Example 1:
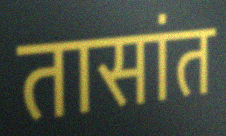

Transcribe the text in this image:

तासांत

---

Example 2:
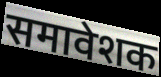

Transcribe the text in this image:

समावेशक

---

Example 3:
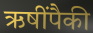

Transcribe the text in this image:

ऋषींपैकी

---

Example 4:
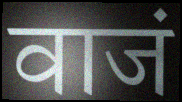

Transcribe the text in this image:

वाजं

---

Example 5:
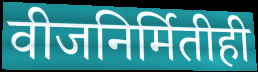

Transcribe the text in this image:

वीजनिर्मितीही